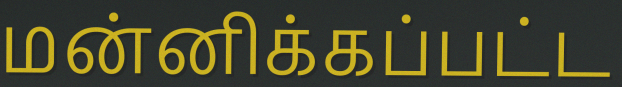
மன்னிக்கப்பட்ட